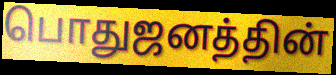
பொதுஜனத்தின்